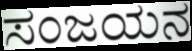
ಸಂಜಯನ